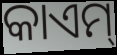
କାଏମ୍